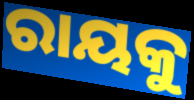
ରାୟକୁ